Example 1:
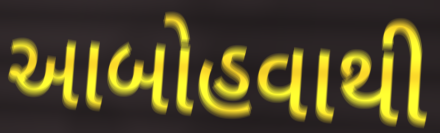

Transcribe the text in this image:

આબોહવાથી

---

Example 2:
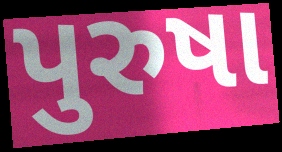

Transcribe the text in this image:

પુરુષા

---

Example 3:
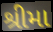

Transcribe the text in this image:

શ્રીમા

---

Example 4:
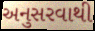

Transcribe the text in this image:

અનુસરવાથી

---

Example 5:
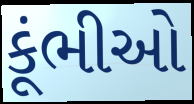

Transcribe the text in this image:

કૂંભીઓ